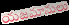
యజమానులు